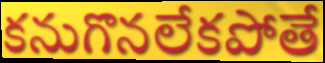
కనుగొనలేకపోతే